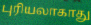
புரியலாகாது